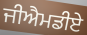
ਜੀਐਮਡੀਏ